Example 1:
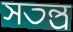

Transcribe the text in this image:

সতন্ত্র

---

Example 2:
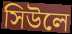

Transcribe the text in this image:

সিউলে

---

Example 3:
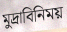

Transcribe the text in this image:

মুদ্রাবিনিময়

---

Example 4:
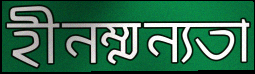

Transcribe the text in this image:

হীনম্মন্যতা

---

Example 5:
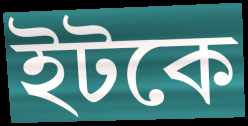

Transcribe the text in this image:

ইটকে